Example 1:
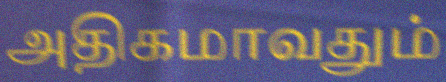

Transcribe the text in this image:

அதிகமாவதும்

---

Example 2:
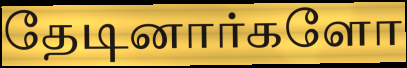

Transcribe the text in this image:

தேடினார்களோ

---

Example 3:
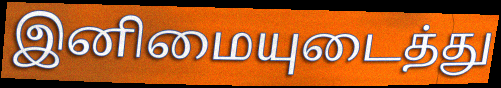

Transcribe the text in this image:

இனிமையுடைத்து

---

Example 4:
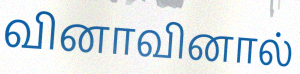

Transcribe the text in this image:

வினாவினால்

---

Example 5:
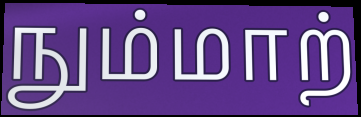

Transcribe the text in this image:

நும்மாற்